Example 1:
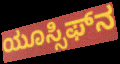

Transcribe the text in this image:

ಯೂಸ್ಸಿಫ್‌ನ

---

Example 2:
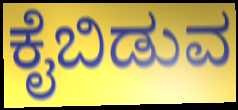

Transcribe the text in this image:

ಕೈಬಿಡುವ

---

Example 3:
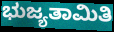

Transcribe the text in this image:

ಭುಜ್ಯತಾಮಿತಿ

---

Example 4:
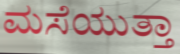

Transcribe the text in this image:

ಮಸೆಯುತ್ತಾ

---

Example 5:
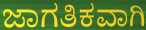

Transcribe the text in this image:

ಜಾಗತಿಕವಾಗಿ